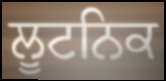
ਲੂਟਨਿਕ